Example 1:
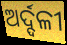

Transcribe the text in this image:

ଅର୍ଦ୍ଦଳୀ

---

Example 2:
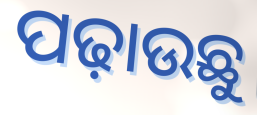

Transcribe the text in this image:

ପଢ଼ାଉଛୁ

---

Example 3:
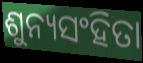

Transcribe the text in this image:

ଶୁନ୍ୟସଂହିତା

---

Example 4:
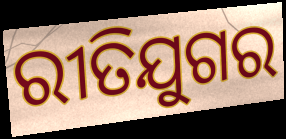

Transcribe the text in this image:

ରୀତିଯୁଗର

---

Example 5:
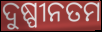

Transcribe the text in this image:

ଦୁଷ୍ପୀନତମ